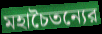
মহাচৈতন্যের